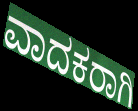
ವಾದಕರಾಗಿ